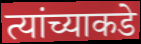
त्यांच्याकडे